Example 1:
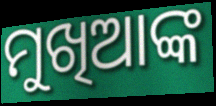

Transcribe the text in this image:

ମୁଖିଆଙ୍କ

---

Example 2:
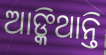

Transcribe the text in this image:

ଆଙ୍କିଥାନ୍ତି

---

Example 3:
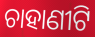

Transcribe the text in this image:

ଚାହାଣୀଟି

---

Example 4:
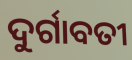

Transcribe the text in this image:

ଦୁର୍ଗାବତୀ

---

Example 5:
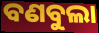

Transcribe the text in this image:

ବଣବୁଲା